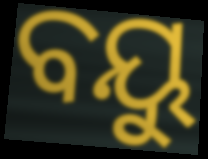
ବୟୁ